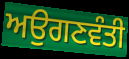
ਅਉਗਣਵੰਤੀ